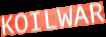
KOILWAR